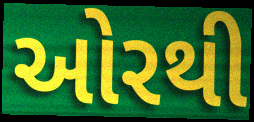
ઓરથી